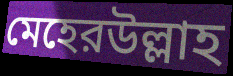
মেহেরউল্লাহ